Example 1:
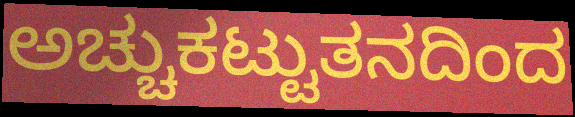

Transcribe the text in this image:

ಅಚ್ಚುಕಟ್ಟುತನದಿಂದ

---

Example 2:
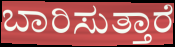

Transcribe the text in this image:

ಬಾರಿಸುತ್ತಾರೆ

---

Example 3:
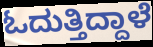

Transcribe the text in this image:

ಓದುತ್ತಿದ್ದಾಳೆ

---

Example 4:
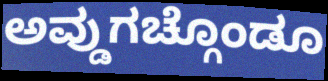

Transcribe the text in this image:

ಅವ್ಡುಗಚ್ಗೊಂಡೂ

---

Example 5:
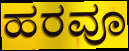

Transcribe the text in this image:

ಹರವೂ